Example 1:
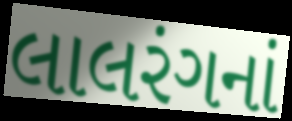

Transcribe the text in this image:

લાલરંગનાં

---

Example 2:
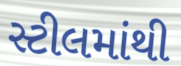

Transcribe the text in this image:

સ્ટીલમાંથી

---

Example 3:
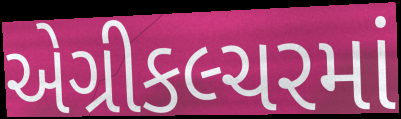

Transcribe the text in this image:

એગ્રીકલ્ચરમાં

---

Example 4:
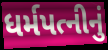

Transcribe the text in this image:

ધર્મપત્નીનું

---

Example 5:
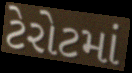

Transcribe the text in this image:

ટેરોટમાં